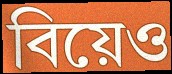
বিয়েও